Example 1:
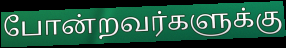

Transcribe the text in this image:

போன்றவர்களுக்கு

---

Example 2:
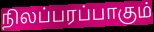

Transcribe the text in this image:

நிலப்பரப்பாகும்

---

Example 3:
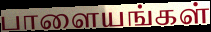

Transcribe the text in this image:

பாளையங்கள்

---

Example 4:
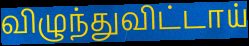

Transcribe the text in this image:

விழுந்துவிட்டாய்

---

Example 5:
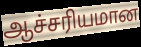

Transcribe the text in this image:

ஆச்சரியமான